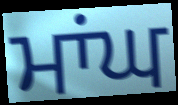
ਮਾਂਘ